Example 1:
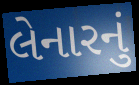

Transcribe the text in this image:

લેનારનું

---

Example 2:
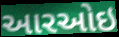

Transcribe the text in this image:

આરઓઇ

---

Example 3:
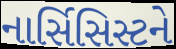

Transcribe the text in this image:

નાર્સિસિસ્ટને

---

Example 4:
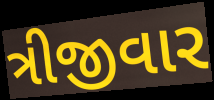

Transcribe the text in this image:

ત્રીજીવાર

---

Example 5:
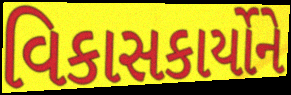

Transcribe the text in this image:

વિકાસકાર્યોને